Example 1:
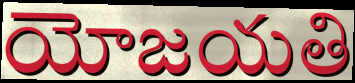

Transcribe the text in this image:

యోజయతి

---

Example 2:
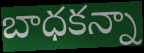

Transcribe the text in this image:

బాధకన్నా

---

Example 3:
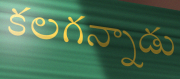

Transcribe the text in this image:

కలగన్నాడు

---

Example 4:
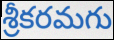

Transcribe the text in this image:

శ్రీకరమగు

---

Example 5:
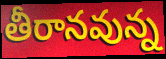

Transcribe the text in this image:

తీరానవున్న